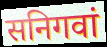
सनिगवां